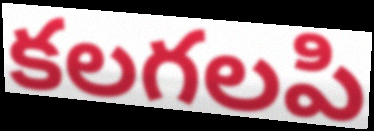
కలగలపి